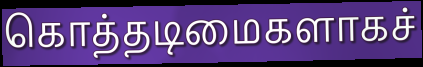
கொத்தடிமைகளாகச்